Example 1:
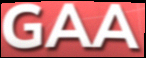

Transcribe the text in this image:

GAA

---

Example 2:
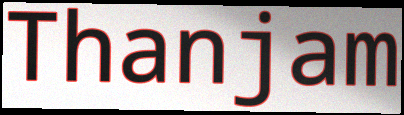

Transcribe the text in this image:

Thanjam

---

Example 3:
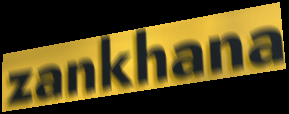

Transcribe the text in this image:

zankhana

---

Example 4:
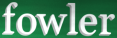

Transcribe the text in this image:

fowler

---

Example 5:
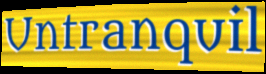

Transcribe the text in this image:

Untranquil